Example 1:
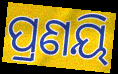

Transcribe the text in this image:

ପ୍ରଣୟି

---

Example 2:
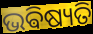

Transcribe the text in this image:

ଭଵିଷ୍ୟତି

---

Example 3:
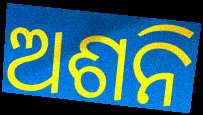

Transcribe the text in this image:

ଅଶନି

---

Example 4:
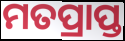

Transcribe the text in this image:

ମତପ୍ରାପ୍ତ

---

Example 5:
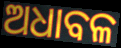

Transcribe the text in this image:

ଅଧାବଳ